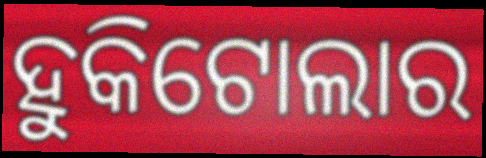
ହୁକିଟୋଲାର